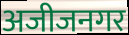
अजीजनगर